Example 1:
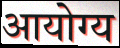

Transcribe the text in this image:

आयोग्य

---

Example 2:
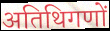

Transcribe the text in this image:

अतिथिगणों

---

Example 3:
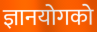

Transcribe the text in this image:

ज्ञानयोगको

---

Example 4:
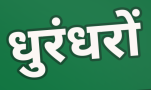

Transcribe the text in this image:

धुरंधरों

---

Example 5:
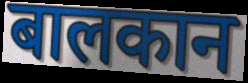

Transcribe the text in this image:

बालकान